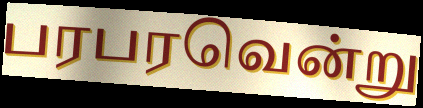
பரபரவென்று